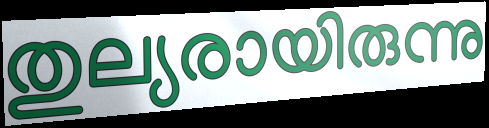
തുല്യരായിരുന്നു